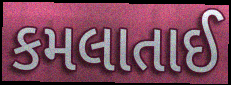
કમલાતાઈ